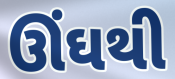
ઊંઘથી